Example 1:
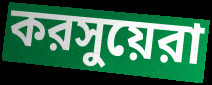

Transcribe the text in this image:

করসুয়েরা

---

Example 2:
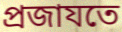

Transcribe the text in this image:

প্রজাযতে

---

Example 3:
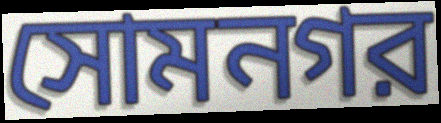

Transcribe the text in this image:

সোমনগর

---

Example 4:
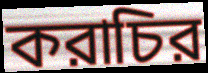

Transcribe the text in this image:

করাচির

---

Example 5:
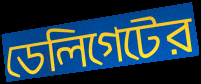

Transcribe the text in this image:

ডেলিগেটের